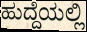
ಹುದ್ದೆಯಲ್ಲಿ